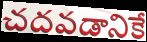
చదవడానికే